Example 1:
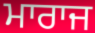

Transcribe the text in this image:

ਮਾਰਾਜ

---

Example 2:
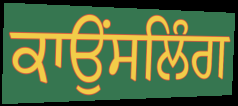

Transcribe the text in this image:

ਕਾਉੰਸਲਿੰਗ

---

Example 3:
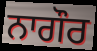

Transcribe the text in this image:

ਨਾਗੌਰ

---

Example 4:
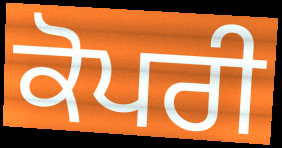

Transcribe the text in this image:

ਕੋਪਰੀ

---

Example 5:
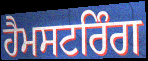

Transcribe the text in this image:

ਹੈਮਸਟਰਿੰਗ